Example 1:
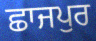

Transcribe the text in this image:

ਛਾਜਪੁਰ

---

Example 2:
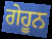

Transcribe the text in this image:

ਗੇਹੂਨ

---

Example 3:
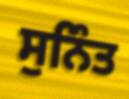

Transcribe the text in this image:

ਸੁਨਿੰਤ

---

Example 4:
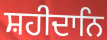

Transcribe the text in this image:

ਸ਼ਹੀਦਾਨਿ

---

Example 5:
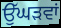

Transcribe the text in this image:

ਉੱਘੜਵਾਂ